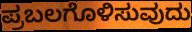
ಪ್ರಬಲಗೊಳಿಸುವುದು